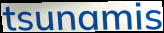
tsunamis